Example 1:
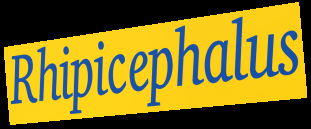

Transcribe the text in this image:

Rhipicephalus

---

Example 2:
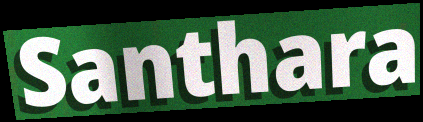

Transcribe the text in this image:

Santhara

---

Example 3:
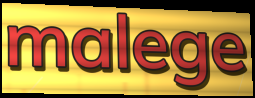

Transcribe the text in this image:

malege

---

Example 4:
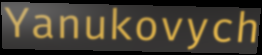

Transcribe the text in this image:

Yanukovych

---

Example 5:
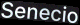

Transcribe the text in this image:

Senecio